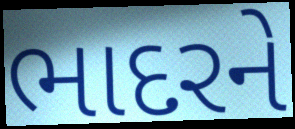
ભાદરને